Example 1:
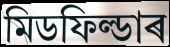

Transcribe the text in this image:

মিডফিল্ডাৰ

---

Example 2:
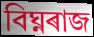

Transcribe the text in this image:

বিঘ্নৰাজ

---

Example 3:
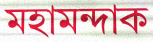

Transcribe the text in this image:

মহামন্দাক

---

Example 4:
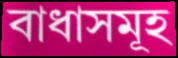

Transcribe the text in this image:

বাধাসমূহ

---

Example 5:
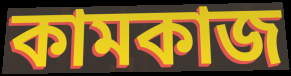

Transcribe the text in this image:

কামকাজ